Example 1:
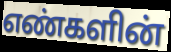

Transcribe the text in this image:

எண்களின்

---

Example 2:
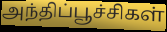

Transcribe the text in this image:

அந்திப்பூச்சிகள்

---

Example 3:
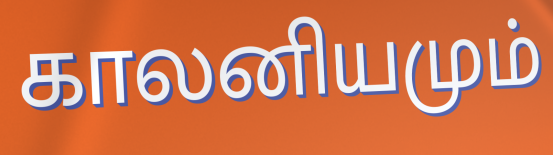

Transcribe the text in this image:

காலனியமும்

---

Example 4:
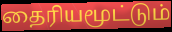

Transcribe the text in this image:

தைரியமூட்டும்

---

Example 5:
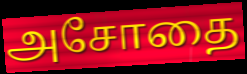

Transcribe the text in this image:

அசோதை